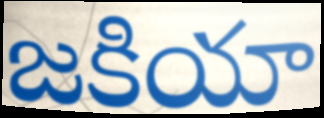
జకియా